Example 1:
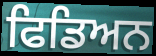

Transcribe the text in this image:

ਫਿਡਿਅਨ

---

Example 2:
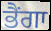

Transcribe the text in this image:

ਭੈਂਗਾ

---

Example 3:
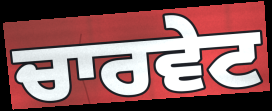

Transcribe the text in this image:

ਚਾਰਵੇਟ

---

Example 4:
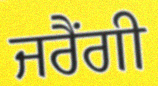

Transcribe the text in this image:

ਜਰੈਂਗੀ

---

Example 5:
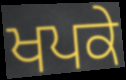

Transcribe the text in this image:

ਖਪਕੇ